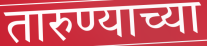
तारुण्याच्या